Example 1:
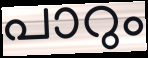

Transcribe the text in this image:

പാറും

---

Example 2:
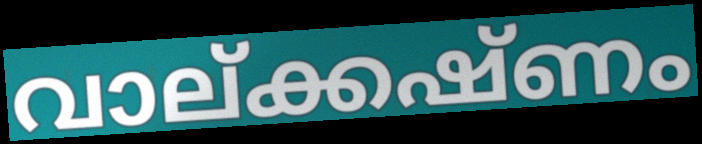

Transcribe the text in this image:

വാല്ക്കഷ്ണം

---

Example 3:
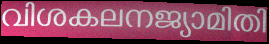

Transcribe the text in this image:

വിശകലനജ്യാമിതി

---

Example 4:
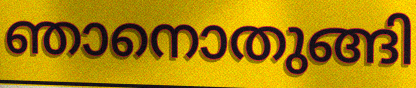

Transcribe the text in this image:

ഞാനൊതുങ്ങി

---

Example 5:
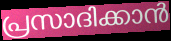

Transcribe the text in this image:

പ്രസാദിക്കാൻ